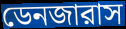
ডেনজারাস